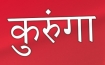
कुरुंगा